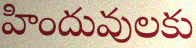
హిందువులకు